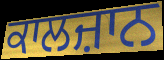
ਕਾਲਜ਼ਾਨ